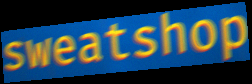
sweatshop